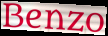
Benzo